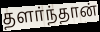
தளர்ந்தான்